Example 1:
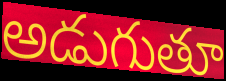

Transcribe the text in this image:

అడుగుతూ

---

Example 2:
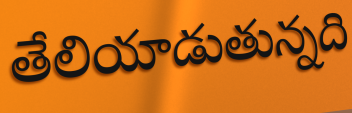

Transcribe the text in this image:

తేలియాడుతున్నది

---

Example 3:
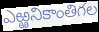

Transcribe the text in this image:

ఎఱ్ఱనికాంతిగల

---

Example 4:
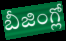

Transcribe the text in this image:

బీజింగ్లో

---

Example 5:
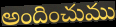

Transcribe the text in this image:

అందించుము